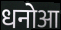
धनोआ